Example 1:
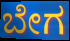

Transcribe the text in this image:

ಬೇಗ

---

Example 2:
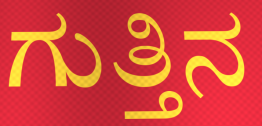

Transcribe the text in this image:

ಗುತ್ತಿನ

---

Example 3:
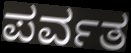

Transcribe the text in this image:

ಪರ್ವತ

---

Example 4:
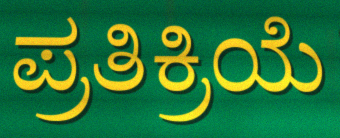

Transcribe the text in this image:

ಪ್ರತಿಕ್ರಿಯೆ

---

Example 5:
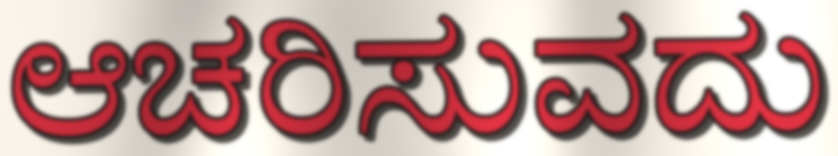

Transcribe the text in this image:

ಆಚರಿಸುವದು